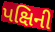
પક્ષિની